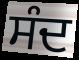
ਸੰਦ